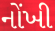
નોંખી